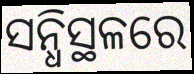
ସନ୍ଧିସ୍ଥଳରେ